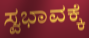
ಸ್ವಭಾವಕ್ಕೆ